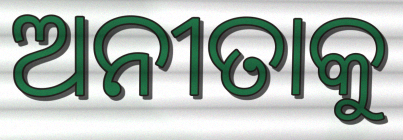
ଅନୀତାକୁ